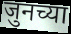
जुनच्या